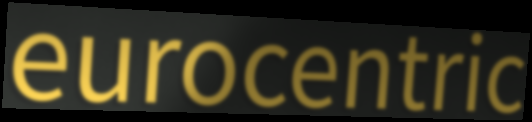
eurocentric